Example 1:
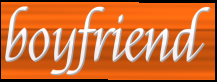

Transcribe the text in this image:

boyfriend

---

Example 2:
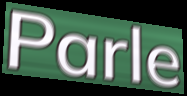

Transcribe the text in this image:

Parle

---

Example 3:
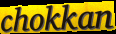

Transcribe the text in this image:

chokkan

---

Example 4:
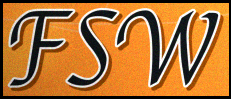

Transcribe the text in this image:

FSW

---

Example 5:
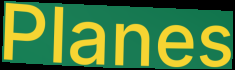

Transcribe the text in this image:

Planes